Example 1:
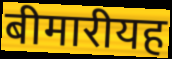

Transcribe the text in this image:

बीमारीयह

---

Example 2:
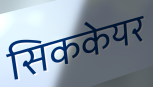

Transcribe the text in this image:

सिककेयर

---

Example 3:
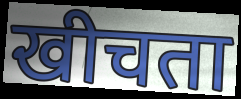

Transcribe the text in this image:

खीचता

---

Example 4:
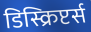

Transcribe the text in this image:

डिस्क्रिप्टर्स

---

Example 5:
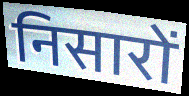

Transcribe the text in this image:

निसारों